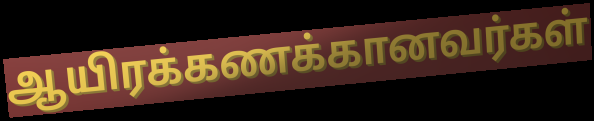
ஆயிரக்கணக்கானவர்கள்